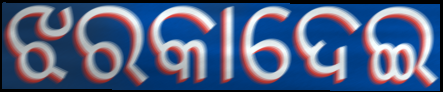
ଝରକାଦେଇ